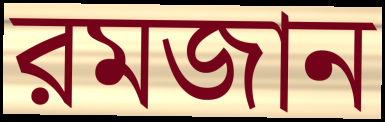
রমজান